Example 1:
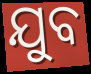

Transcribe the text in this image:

ଯୁବ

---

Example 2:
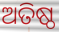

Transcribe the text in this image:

ଅତିଷ୍ଠ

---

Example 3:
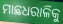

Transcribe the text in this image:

ମାଛଧରାଳିକୁ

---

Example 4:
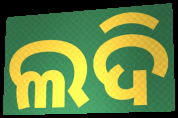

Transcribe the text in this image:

ଲଦି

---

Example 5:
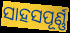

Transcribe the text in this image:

ସାହସପୂର୍ଣ୍ଣ